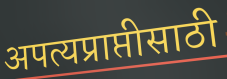
अपत्यप्राप्तीसाठी